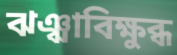
ঝঞ্ঝাবিক্ষুব্ধ